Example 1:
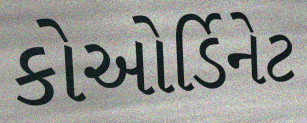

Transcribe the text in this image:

કોઓર્ડિનેટ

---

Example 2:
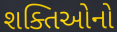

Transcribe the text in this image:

શક્તિઓનો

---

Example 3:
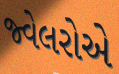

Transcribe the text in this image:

જ્વેલરોએ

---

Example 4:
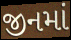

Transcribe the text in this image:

જીનમાં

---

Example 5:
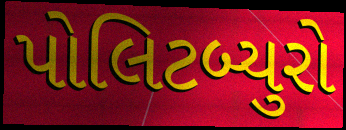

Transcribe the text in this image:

પોલિટબ્યુરો